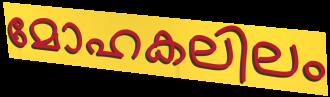
മോഹകലിലം